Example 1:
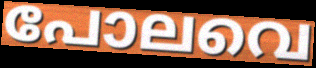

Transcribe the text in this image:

പോലവെ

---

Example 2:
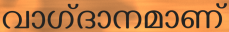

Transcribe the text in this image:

വാഗ്‌ദാനമാണ്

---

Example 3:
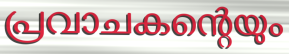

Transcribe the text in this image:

പ്രവാചകന്റെയും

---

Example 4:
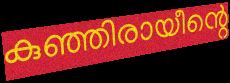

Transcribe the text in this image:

കുഞ്ഞിരായീന്റെ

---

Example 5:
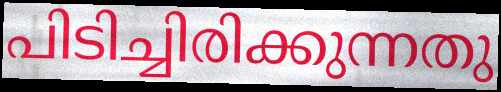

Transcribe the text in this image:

പിടിച്ചിരിക്കുന്നതു